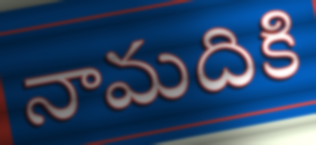
నామదికి